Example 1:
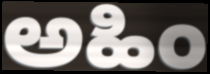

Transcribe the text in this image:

ಅಹಿಂ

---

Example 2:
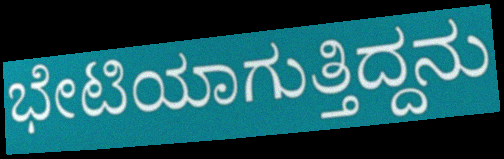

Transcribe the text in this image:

ಭೇಟಿಯಾಗುತ್ತಿದ್ದನು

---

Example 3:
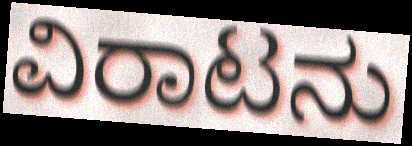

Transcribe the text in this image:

ವಿರಾಟನು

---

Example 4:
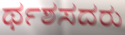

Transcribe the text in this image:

ರ್ಥಶಸದರು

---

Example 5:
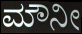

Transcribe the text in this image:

ಮೌನೀ